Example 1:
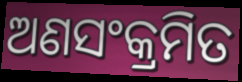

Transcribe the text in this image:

ଅଣସଂକ୍ରମିତ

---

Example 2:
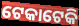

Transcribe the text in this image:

ଟେକାଟେକି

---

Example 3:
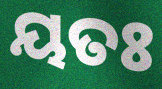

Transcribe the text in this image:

ୟତଃ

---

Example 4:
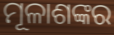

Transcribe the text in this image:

ମୂଳାଶଙ୍କର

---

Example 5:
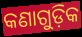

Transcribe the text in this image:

କଣାଗୁଡ଼ିକ